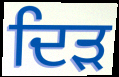
ਦਿੜ